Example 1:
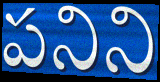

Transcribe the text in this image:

పనిని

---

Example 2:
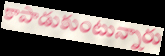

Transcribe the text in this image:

కాపాడుకుంటున్నారు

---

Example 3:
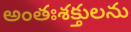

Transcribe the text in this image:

అంతఃశక్తులను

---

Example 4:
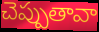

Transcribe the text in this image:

చెప్పుతావా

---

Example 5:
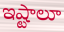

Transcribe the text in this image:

ఇష్టాలూ